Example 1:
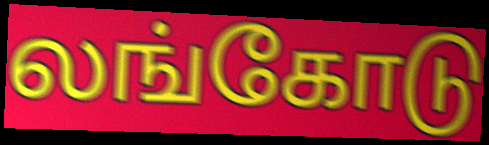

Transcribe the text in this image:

லங்கோடு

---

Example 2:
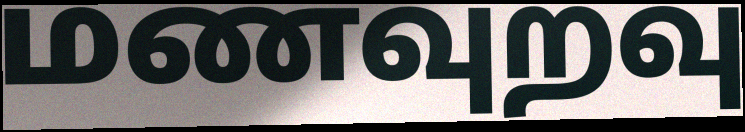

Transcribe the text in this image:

மணவுறவு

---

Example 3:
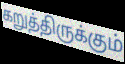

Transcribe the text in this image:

கறுத்திருக்கும்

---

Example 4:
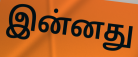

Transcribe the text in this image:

இன்னது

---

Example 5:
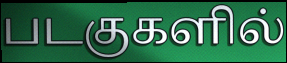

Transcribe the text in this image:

படகுகளில்